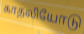
காதலியோடு